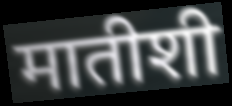
मातीशी